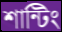
শান্টিং